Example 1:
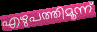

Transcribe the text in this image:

എഴുപത്തിമൂന്ന്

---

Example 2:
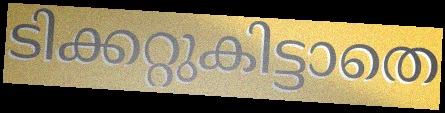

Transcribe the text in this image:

ടിക്കറ്റുകിട്ടാതെ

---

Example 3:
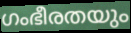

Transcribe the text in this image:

ഗംഭീരതയും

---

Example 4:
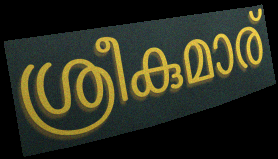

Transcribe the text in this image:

ശ്രീകുമാര്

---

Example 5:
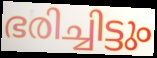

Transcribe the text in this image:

ഭരിച്ചിട്ടും